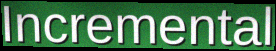
Incremental